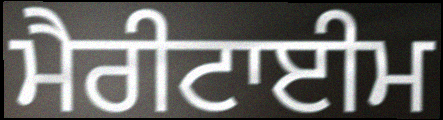
ਮੈਰੀਟਾਈਮ